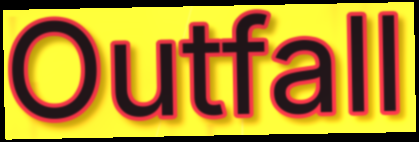
Outfall